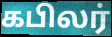
கபிலர்